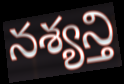
నశ్యన్తి